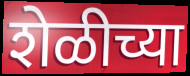
शेळीच्या